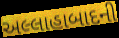
અલ્લાહાબાદની